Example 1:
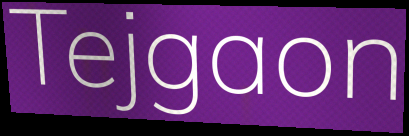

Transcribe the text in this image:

Tejgaon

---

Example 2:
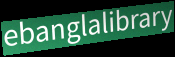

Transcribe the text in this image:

ebanglalibrary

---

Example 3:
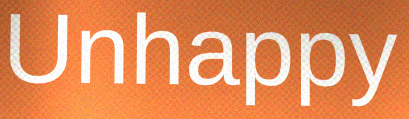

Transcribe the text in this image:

Unhappy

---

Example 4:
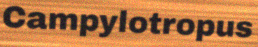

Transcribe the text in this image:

Campylotropus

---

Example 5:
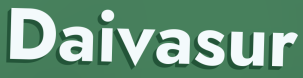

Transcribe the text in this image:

Daivasur